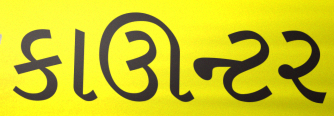
કાઊન્ટર